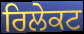
ਰਿਲੇਕਟ